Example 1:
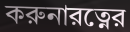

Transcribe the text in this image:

করুনারত্নের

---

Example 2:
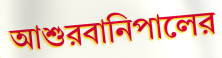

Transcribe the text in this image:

আশুরবানিপালের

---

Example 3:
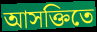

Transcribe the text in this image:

আসক্তিতে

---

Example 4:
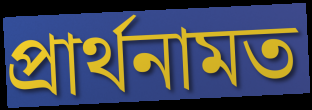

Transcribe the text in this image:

প্রার্থনামত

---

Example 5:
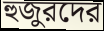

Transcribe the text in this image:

হুজুরদের